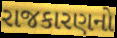
રાજકારણનો